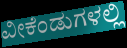
ವೀಕೆಂಡುಗಳಲ್ಲಿ